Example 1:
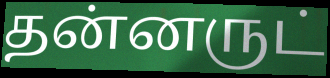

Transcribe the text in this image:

தன்னருட்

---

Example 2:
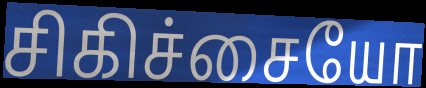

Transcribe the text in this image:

சிகிச்சையோ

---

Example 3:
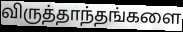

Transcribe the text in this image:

விருத்தாந்தங்களை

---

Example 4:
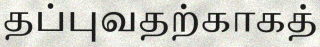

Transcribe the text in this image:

தப்புவதற்காகத்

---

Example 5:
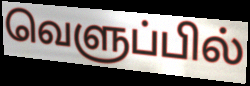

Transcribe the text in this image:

வெளுப்பில்